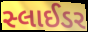
સ્લાઈડર